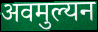
अवमुल्यन